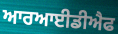
ਆਰਆਈਡੀਐਫ